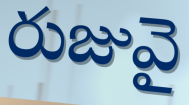
రుజువై